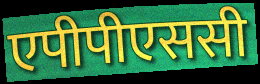
एपीपीएससी